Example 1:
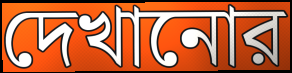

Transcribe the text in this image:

দেখানোর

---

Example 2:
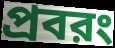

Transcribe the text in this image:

প্রবরং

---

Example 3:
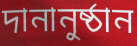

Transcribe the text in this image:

দানানুষ্ঠান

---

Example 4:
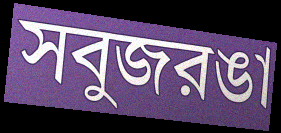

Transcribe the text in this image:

সবুজরঙা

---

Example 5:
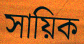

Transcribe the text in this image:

সায়িক